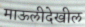
माऊलीदेखील